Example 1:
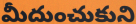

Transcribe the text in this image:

మీదుంచుకుని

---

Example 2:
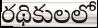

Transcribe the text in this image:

రథికులలో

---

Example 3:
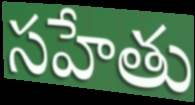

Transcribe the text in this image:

సహేతు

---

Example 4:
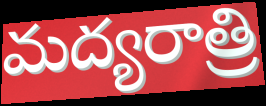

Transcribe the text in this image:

మద్యరాత్రి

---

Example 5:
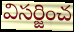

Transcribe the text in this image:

విసర్జించ